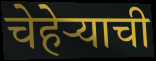
चेहेऱ्याची